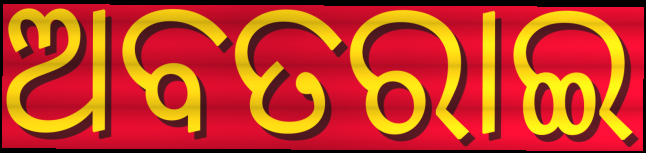
ଅବତରାଇ